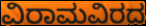
ವಿರಾಮವಿರದ